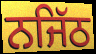
ਨਜਿੱਠ